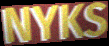
NYKS